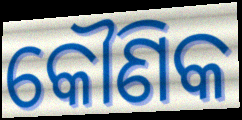
କୌଣିକ